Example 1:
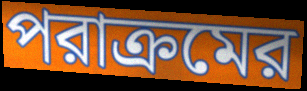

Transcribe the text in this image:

পরাক্রমের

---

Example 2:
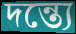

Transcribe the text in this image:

দন্ত্যে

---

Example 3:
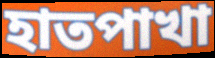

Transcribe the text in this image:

হাতপাখা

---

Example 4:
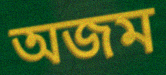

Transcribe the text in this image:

অজম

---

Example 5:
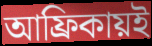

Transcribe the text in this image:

আফ্রিকায়ই